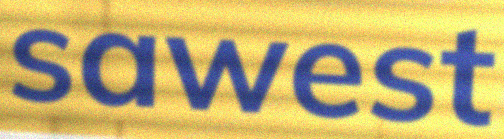
sawest